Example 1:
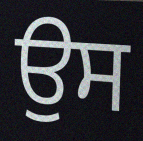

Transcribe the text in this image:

ਉਸ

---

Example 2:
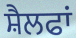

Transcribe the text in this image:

ਸ਼ੈਲਫਾਂ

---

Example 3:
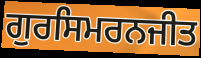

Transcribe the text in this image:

ਗੁਰਸਿਮਰਨਜੀਤ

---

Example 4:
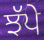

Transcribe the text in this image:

ਝੱਪੇ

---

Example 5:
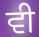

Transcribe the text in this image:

ਵੀ